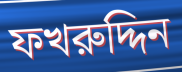
ফখরুদ্দিন